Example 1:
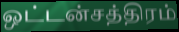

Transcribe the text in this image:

ஒட்டன்சத்திரம்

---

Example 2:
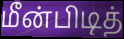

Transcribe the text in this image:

மீன்பிடித்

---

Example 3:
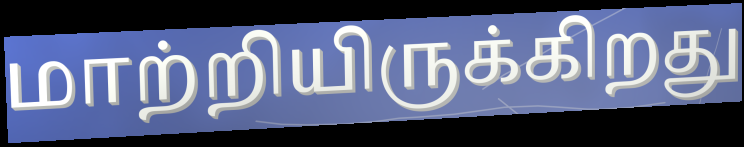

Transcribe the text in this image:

மாற்றியிருக்கிறது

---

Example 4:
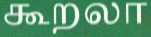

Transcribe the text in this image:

கூறலா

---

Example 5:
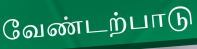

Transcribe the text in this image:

வேண்டற்பாடு